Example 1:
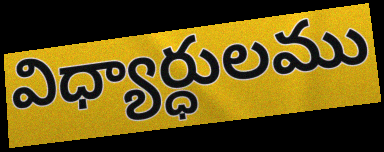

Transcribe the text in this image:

విధ్యార్ధులము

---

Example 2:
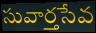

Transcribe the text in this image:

సువార్తసేవ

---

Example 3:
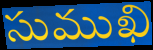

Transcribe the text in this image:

సుముఖి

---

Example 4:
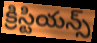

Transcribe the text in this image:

క్రిస్టియన్స్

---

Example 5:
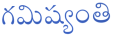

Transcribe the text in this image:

గమిష్యంతి